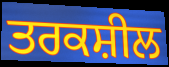
ਤਰਕਸ਼ੀਲ